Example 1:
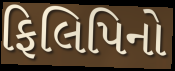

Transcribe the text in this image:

ફિલિપિનો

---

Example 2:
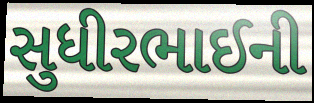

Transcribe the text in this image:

સુધીરભાઈની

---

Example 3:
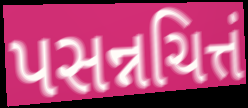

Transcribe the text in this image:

પસન્નચિત્તં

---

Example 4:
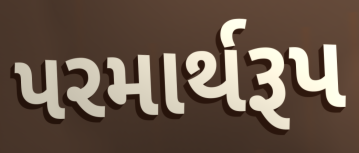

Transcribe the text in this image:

પરમાર્થરૂપ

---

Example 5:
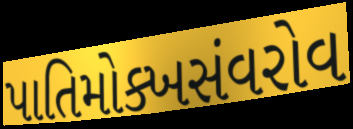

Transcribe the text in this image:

પાતિમોક્ખસંવરોવ